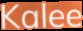
Kalee